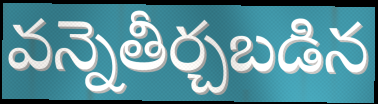
వన్నెతీర్చబడిన